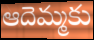
ఆదెమ్మకు